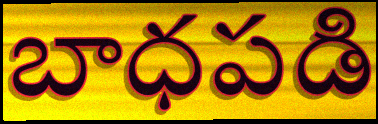
బాధపడి